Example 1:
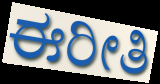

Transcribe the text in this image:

ಈರೀತಿ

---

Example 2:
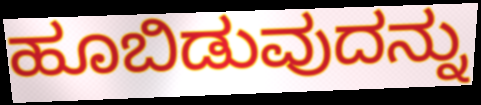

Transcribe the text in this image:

ಹೂಬಿಡುವುದನ್ನು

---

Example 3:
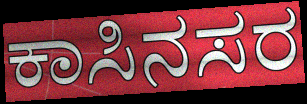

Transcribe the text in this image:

ಕಾಸಿನಸರ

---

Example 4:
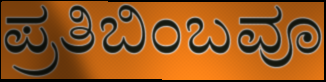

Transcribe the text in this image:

ಪ್ರತಿಬಿಂಬವೂ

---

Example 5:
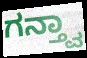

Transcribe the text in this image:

ಗನ್ತ್ವಾ